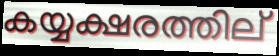
കയ്യക്ഷരത്തില്